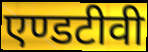
एण्डटीवी